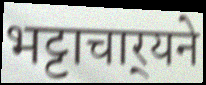
भट्टाचार्यने